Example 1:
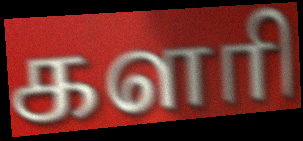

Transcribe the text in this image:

களரி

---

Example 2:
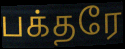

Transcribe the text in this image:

பக்தரே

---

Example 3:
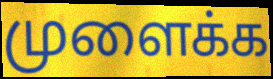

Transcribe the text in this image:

முளைக்க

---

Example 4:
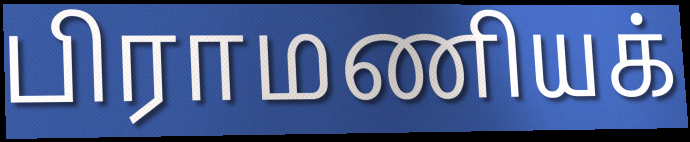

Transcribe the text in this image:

பிராமணியக்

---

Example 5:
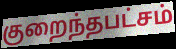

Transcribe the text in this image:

குறைந்தபட்சம்